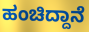
ಹಂಚಿದ್ದಾನೆ